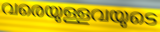
വരെയുള്ളവയുടെ